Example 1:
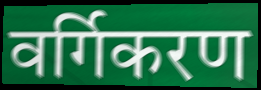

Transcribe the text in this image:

वर्गिकरण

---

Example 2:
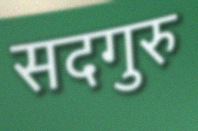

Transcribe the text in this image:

सदगुरु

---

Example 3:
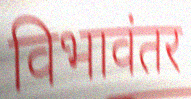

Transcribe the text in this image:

विभावंतर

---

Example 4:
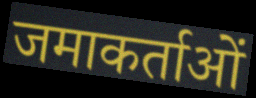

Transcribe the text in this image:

जमाकर्ताओं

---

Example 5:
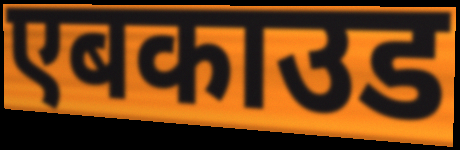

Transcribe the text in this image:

एबकाउड